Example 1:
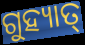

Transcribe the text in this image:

ଗୁହ୍ୟାତ୍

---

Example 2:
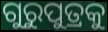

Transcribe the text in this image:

ଗୁରୁପୁତ୍ରକୁ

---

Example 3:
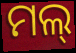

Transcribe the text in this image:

ମଲ୍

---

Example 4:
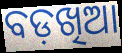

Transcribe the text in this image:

ବଡ଼ଖିଆ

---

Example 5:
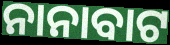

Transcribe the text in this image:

ନାନାବାଟ